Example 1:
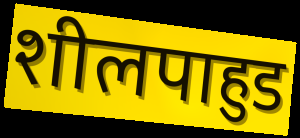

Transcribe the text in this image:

शीलपाहुड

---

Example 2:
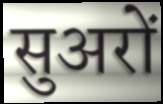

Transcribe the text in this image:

सुअरों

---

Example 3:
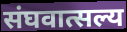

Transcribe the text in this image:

संघवात्सल्य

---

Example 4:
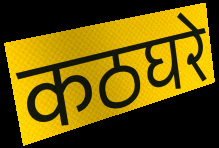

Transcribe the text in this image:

कठघरे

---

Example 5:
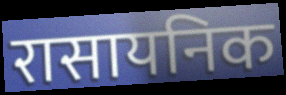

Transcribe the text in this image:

रासायनिक